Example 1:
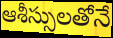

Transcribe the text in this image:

ఆశీస్సులతోనే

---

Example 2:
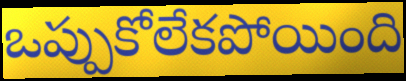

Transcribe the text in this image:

ఒప్పుకోలేకపోయింది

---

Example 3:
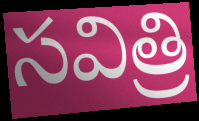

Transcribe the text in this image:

సవిత్రి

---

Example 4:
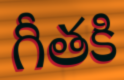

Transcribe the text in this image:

గీతకి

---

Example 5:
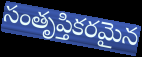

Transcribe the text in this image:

సంతృప్తికరమైన